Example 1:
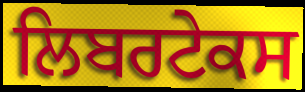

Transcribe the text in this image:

ਲਿਬਰਟੇਕਸ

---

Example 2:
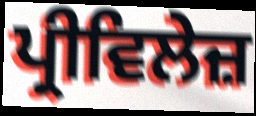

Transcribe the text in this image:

ਪ੍ਰੀਵਿਲੇਜ਼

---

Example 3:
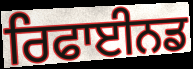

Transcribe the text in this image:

ਰਿਫਾਈਨਡ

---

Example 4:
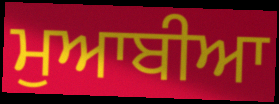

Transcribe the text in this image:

ਮੁਆਬੀਆ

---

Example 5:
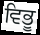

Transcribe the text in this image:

ਵਿਭੂ